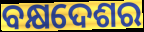
ବକ୍ଷଦେଶର